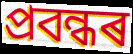
প্ৰবন্ধৰ